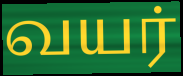
வயர்